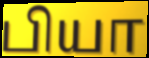
பியா